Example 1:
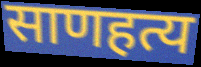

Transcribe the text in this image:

साणहत्य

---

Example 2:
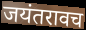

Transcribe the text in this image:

जयंतरावच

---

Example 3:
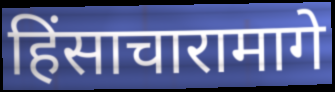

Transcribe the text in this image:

हिंसाचारामागे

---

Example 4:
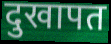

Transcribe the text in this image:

दुखापत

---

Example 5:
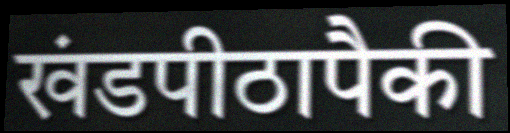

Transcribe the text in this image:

खंडपीठापैकी